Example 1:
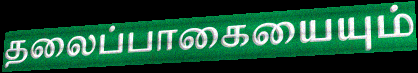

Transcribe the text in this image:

தலைப்பாகையையும்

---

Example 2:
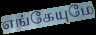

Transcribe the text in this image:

எங்கேயுமே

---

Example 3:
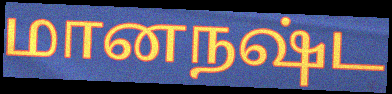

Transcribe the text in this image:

மானநஷ்ட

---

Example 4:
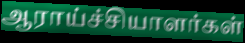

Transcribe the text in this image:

ஆராய்ச்சியாளர்கள்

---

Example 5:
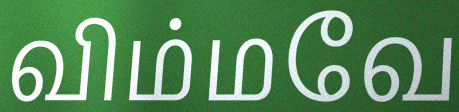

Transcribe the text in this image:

விம்மவே